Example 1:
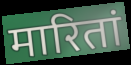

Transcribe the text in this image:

मारितां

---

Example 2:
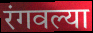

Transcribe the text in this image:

रंगवल्या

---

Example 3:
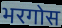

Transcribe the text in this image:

भरगोस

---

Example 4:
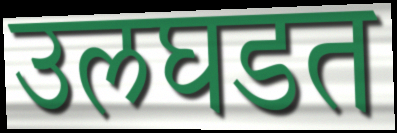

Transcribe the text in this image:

उलघडत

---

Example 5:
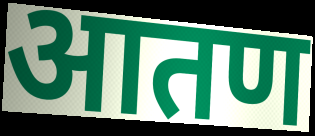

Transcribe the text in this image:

आतण